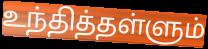
உந்தித்தள்ளும்